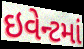
ઇવેન્ટમાં